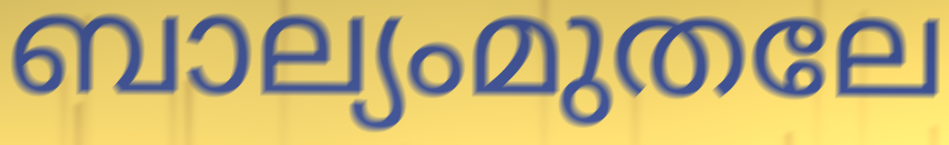
ബാല്യംമുതലേ